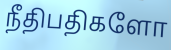
நீதிபதிகளோ